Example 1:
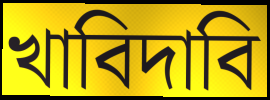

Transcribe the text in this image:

খাবিদাবি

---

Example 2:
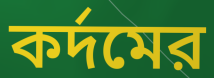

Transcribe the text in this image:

কর্দমের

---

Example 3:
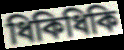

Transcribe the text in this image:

ধিকিধিকি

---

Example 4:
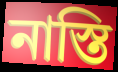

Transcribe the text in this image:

নাস্তি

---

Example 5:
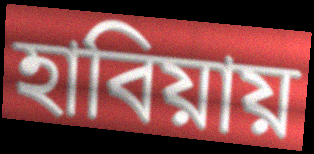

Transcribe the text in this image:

হাবিয়ায়